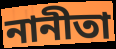
নানীতা